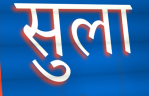
सुला